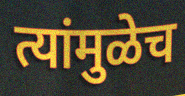
त्यांमुळेच